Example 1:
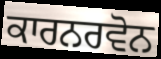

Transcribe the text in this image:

ਕਾਰਨਰਵੋਨ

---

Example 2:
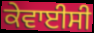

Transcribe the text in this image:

ਕੇਵਾਈਸੀ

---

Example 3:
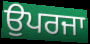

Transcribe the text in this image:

ਉਪਰਜਾ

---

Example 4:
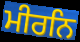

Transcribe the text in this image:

ਮੀਰਨਿ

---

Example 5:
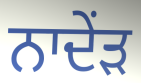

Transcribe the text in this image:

ਨਾਦੇਂੜ